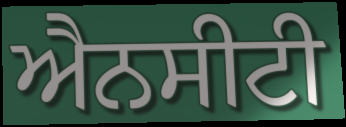
ਐਨਸੀਟੀ